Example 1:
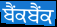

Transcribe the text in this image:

ਬੈਂਕਬੈਂਕ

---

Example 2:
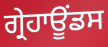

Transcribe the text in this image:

ਗ੍ਰੇਹਾਊਂਡਸ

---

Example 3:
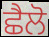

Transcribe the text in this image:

ਛੈਲੋ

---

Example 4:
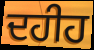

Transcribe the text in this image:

ਦਹੀਹ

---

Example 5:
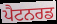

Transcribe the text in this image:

ਪੈਟਨਰਡ